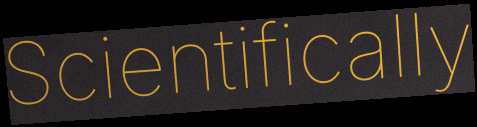
Scientifically